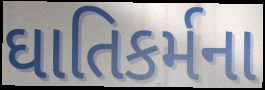
ઘાતિકર્મના